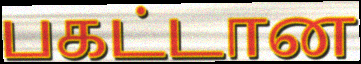
பகட்டான